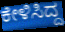
ಕೇಳಿಸಿದ್ದ